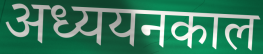
अध्ययनकाल